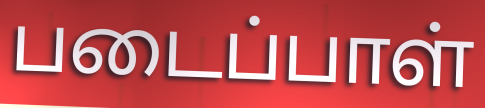
படைப்பாள்